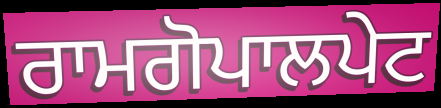
ਰਾਮਗੋਪਾਲਪੇਟ